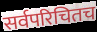
सर्वपरिचितच